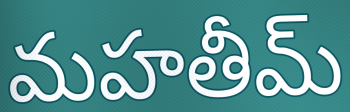
మహతీమ్